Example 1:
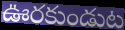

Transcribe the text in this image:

ఊరకుండుట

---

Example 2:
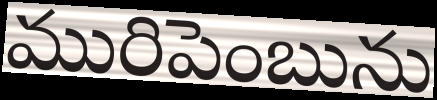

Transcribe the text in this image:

మురిపెంబును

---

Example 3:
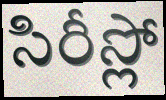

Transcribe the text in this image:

సిరీస్లో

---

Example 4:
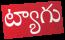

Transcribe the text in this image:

ట్యాగు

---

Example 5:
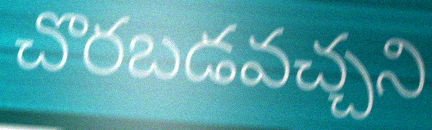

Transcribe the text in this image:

చొరబడవచ్చని